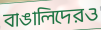
বাঙালিদেরও